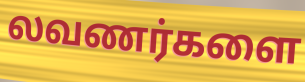
லவணர்களை